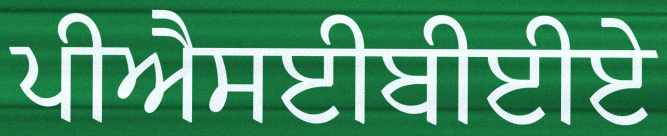
ਪੀਐਸਈਬੀਈਏ